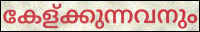
കേള്ക്കുന്നവനും